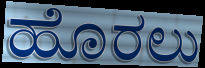
ಹೊರಲು